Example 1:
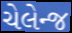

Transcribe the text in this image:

ચેલેન્જ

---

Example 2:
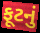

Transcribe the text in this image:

ફૂટનું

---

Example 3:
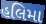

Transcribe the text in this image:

હલિમા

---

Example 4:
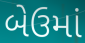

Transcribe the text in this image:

બેઉમાં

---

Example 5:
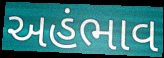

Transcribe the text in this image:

અહંભાવ